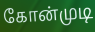
கோன்முடி